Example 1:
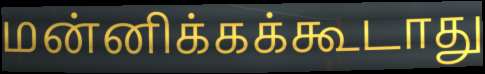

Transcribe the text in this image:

மன்னிக்கக்கூடாது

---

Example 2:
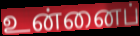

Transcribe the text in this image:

உன்னைப்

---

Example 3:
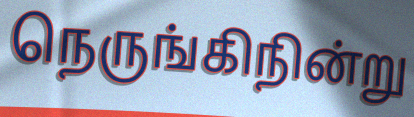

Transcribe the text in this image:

நெருங்கிநின்று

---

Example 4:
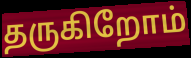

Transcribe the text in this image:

தருகிறோம்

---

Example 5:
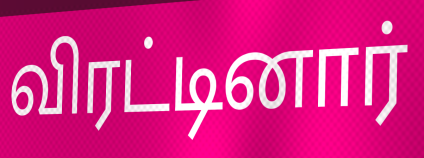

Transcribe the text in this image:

விரட்டினார்